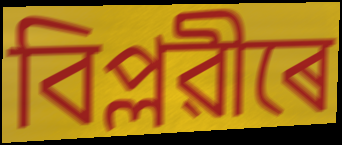
বিপ্লৱীৰে